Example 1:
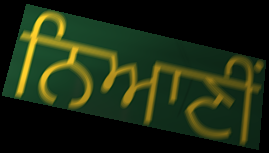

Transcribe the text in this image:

ਨਿਆਣੀਂ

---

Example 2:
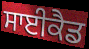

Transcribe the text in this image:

ਸਾਈਕੈਡ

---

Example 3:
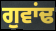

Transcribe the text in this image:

ਗੁਵਾਂਢ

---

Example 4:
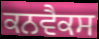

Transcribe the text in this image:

ਕਨਵੈਕਸ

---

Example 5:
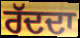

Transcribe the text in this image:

ਰੱਦਦਾ